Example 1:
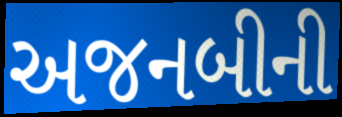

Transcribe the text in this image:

અજનબીની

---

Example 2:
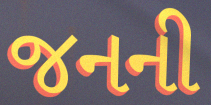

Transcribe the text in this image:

જનની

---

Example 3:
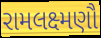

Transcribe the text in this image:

રામલક્ષ્મણૌ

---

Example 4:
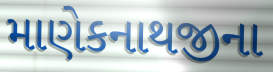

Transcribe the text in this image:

માણેકનાથજીના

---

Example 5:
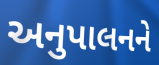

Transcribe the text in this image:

અનુપાલનને